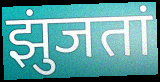
झुंजतां